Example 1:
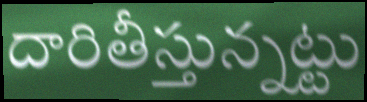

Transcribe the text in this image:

దారితీస్తున్నట్టు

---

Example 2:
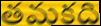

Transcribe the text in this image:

తమకది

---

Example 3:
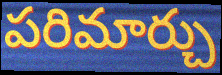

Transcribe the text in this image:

పరిమార్చు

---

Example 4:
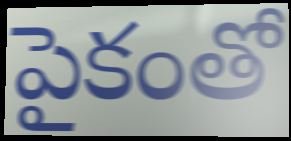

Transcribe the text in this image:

పైకంతో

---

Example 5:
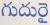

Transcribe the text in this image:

గుదురై